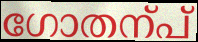
ഗോതന്പ്